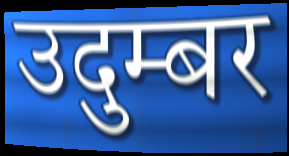
उदुम्बर